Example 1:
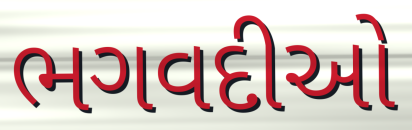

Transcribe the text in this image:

ભગવદીઓ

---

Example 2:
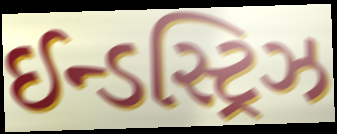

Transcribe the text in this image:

ઈન્ડસ્ટ્રિઝ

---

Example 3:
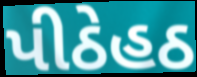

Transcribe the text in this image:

પીઠેહઠ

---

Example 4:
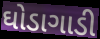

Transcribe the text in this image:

ઘોડાગાડી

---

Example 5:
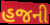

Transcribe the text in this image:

હજની